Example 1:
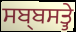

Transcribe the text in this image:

ਸਬ੍ਬਸਤ੍ਤੇ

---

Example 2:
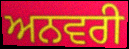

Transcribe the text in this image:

ਅਨਵਰੀ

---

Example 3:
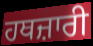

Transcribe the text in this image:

ਹਥਜ਼ਾਰੀ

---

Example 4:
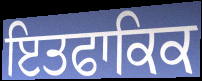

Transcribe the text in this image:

ਇਤਫਾਕਿਕ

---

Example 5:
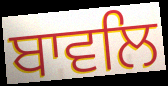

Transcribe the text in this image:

ਬਾਵਲਿ